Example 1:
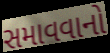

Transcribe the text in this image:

સમાવવાનો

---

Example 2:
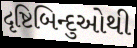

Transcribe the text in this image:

દૃષ્ટિબિન્દુઓથી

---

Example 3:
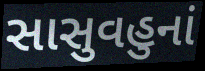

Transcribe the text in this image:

સાસુવહુનાં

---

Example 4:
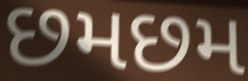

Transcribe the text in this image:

છમછમ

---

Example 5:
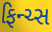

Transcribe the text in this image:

ફિન્ચ્સ